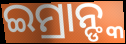
ଇମ୍ରାନ୍ଙ୍କ